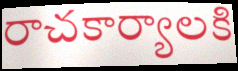
రాచకార్యాలకి